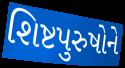
શિષ્ટપુરુષોને